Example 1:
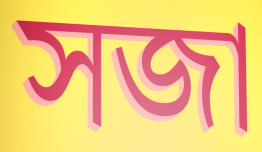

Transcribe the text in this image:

সজা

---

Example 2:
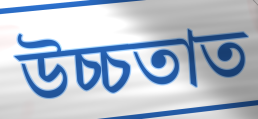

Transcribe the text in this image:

উচ্চতাত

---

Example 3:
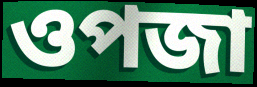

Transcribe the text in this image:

ওপজা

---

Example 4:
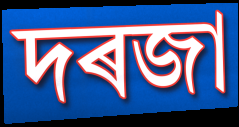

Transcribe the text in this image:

দৰজা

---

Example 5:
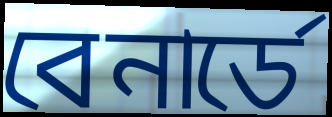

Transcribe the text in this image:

বেনাৰ্ডে